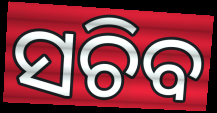
ସଚିବ